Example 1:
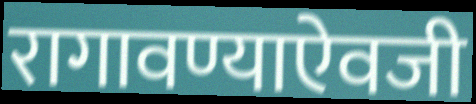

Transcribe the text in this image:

रागावण्याऐवजी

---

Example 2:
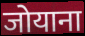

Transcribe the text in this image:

जोयाना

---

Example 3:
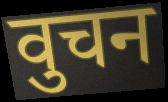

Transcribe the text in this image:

वुचन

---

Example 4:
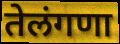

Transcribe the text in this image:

तेलंगणा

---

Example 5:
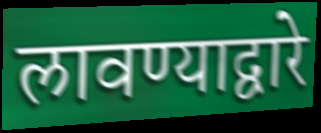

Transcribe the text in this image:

लावण्याद्वारे